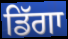
ਡਿੱਗਾ